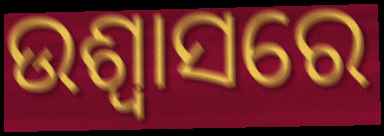
ଉଶ୍ଵାସରେ